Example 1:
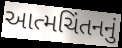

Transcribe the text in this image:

આત્મચિંતનનું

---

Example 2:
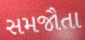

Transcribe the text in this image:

સમજૌતા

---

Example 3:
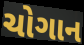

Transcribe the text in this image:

ચોગાન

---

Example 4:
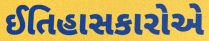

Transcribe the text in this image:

ઈતિહાસકારોએ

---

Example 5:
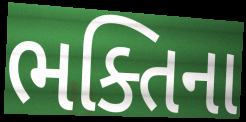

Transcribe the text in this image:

ભક્તિના